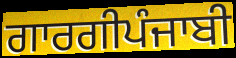
ਗਾਰਗੀਪੰਜਾਬੀ